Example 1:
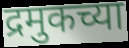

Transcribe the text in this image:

द्रमुकच्या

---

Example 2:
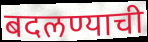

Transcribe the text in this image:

बदलण्याची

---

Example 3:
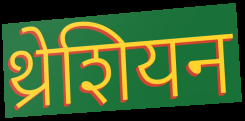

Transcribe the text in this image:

थ्रेशियन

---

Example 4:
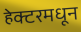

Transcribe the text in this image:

हेक्टरमधून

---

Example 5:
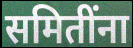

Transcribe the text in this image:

समितींना